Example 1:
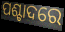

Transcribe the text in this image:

ପଶ୍ଚାଦରେ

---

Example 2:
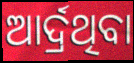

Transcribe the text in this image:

ଆର୍ଦ୍ରଥିବା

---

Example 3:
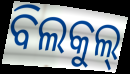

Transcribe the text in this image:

ବିଲକୁଲ୍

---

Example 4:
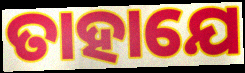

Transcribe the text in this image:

ତାହାଯେ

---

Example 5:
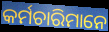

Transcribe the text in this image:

କର୍ମଚାରିମାନେ